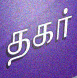
தகர்